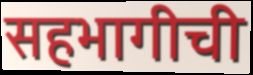
सहभागीची